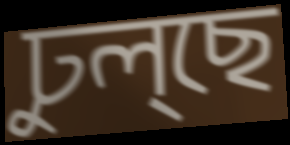
ঢুল্‌ছে